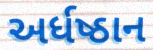
અર્ધષ્ઠાન